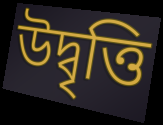
উদ্বৃত্তি